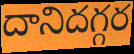
దానిదగ్గర